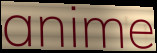
anime